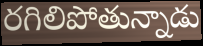
రగిలిపోతున్నాడు